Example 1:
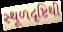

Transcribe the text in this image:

સ્થૂળદૃષ્ટિથી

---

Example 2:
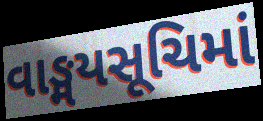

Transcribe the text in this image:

વાઙ્મયસૂચિમાં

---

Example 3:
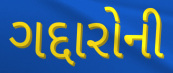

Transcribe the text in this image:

ગદ્દારોની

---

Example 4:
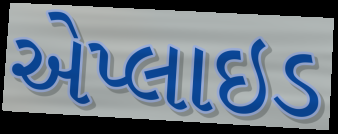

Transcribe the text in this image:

એપ્લાઇડ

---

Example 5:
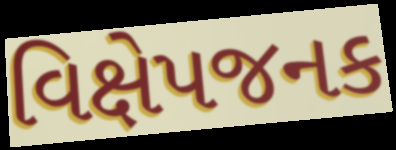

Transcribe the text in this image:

વિક્ષેપજનક